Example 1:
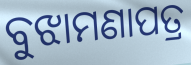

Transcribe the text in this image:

ବୁଝାମଣାପତ୍ର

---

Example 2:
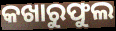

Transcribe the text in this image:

କଖାରୁଫୁଲ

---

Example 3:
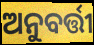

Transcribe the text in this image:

ଅନୁବର୍ତ୍ତୀ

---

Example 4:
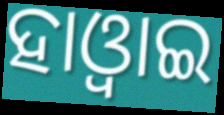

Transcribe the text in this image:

ହାଓ୍ୱାଇ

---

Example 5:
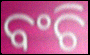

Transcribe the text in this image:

ବଂଚି